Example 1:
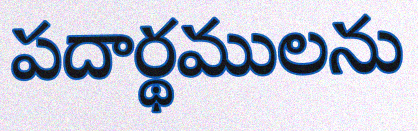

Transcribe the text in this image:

పదార్థములను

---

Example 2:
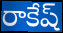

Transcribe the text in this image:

రాకేష్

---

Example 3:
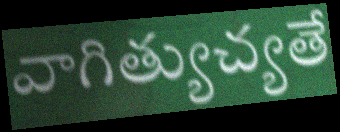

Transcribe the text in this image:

వాగిత్యుచ్యతే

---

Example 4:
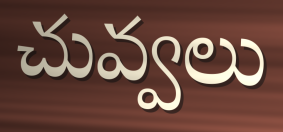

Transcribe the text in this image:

చువ్వలు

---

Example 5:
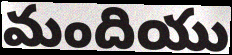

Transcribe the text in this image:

మందియు